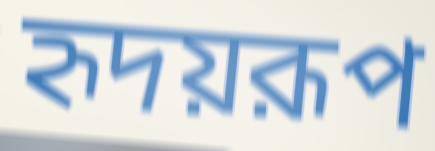
হৃদয়রূপ